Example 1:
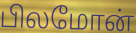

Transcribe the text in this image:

பிலமோன்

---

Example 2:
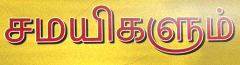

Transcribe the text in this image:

சமயிகளும்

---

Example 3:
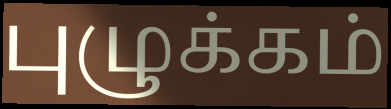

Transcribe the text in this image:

புழுக்கம்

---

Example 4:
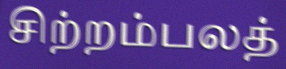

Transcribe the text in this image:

சிற்றம்பலத்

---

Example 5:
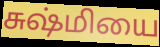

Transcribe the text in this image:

சுஷ்மியை